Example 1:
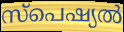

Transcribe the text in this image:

സ്പെഷ്യൽ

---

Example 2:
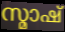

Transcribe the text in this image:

സ്മാഷ്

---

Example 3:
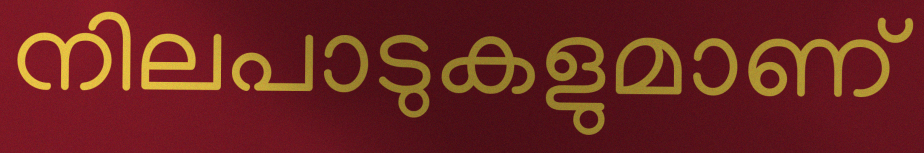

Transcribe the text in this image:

നിലപാടുകളുമാണ്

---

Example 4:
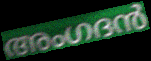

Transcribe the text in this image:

അംഗദൻ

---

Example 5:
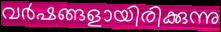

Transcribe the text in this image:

വർഷങ്ങളായിരിക്കുന്നു